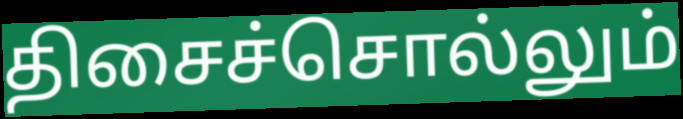
திசைச்சொல்லும்